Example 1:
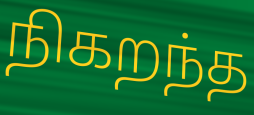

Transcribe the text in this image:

நிகறந்த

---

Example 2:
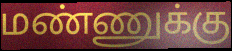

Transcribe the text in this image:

மண்ணுக்கு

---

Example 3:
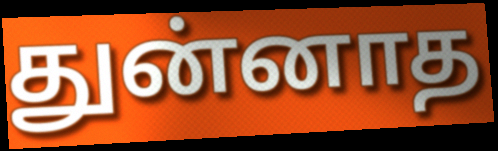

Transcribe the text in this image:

துன்னாத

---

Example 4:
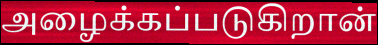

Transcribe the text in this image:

அழைக்கப்படுகிறான்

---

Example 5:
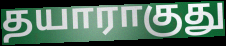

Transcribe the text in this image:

தயாராகுது